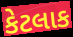
કેટલાક